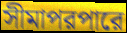
সীমাপরপারে